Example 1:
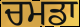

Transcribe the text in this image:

ਚਮਡਾ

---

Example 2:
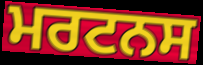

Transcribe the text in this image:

ਮਰਟਨਸ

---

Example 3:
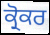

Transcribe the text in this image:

ਕ੍ਰੋਕਰ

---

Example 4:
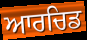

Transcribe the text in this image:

ਆਰਚਿਡ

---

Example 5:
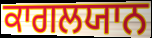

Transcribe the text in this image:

ਕਾਗਲਯਾਨ